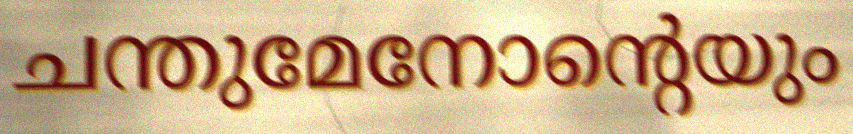
ചന്തുമേനോന്റെയും